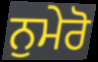
ਨੁਮੇਰੋ